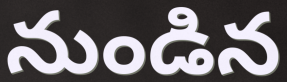
నుండిన